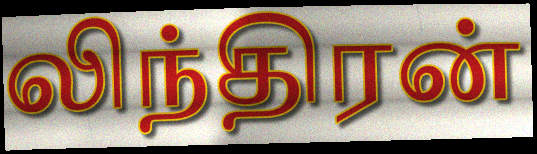
லிந்திரன்